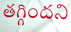
తగ్గిందని